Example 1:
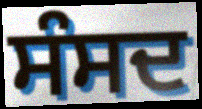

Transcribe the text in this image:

ਸੰਸਦ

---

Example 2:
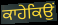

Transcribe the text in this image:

ਕਾਹੇਕਿਉਂ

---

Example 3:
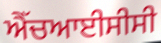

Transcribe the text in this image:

ਐੱਚਆਈਸੀਸੀ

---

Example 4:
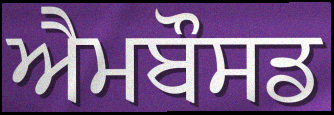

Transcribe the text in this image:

ਐਮਬੌਸਡ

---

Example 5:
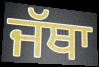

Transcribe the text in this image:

ਜੱਥਾ